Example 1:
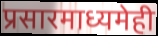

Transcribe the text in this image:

प्रसारमाध्यमेही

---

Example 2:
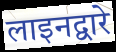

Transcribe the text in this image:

लाइनद्वारे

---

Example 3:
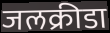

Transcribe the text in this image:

जलक्रीडा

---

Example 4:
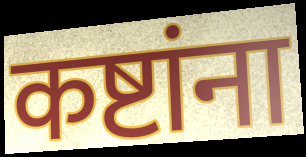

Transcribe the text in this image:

कष्टांना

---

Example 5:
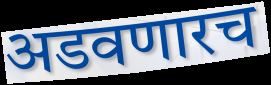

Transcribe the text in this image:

अडवणारच